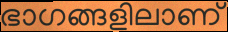
ഭാഗങ്ങളിലാണ്